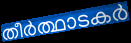
തീർത്ഥാടകർ